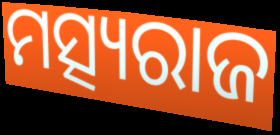
ମତ୍ସ୍ୟରାଜ